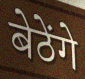
बेठेंगे